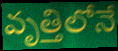
వృత్తిలోనే